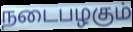
நடைபழகும்